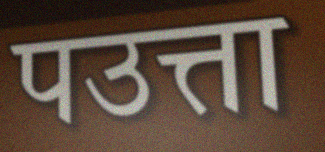
पउत्ता